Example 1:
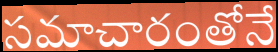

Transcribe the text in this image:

సమాచారంతోనే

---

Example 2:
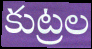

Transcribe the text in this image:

కుట్రల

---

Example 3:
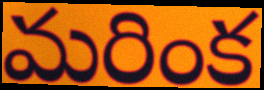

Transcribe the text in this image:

మరింక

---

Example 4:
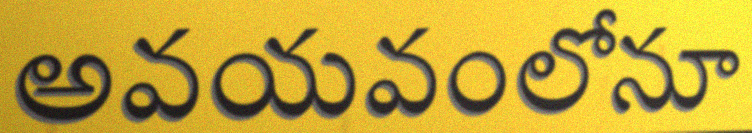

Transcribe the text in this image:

అవయవంలోనూ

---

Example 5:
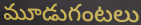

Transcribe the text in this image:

మూడుగంటలు